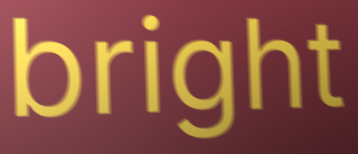
bright